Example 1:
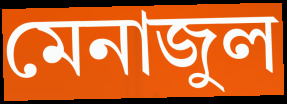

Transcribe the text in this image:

মেনাজুল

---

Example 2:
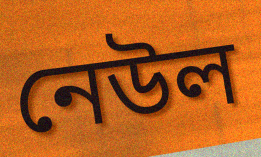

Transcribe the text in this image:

নেউল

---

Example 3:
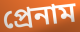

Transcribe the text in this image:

প্রেনাম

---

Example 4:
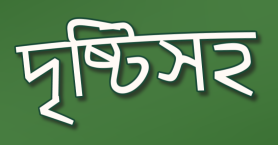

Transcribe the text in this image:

দৃষ্টিসহ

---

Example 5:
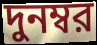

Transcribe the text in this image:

দুনম্বর